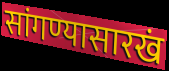
सांगण्यासारखं